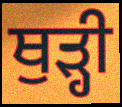
ਥੁੜ੍ਹੀ